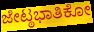
ಜೇಟ್ಠಭಾತಿಕೋ